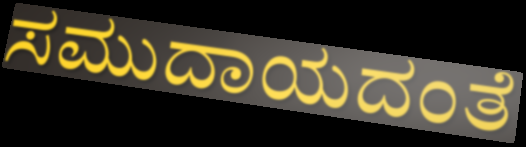
ಸಮುದಾಯದಂತೆ